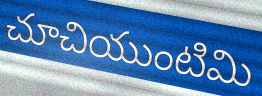
చూచియుంటిమి